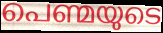
പെണ്മയുടെ